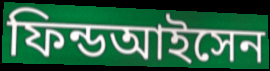
ফিন্ডআইসেন